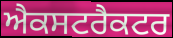
ਐਕਸਟਰੈਕਟਰ